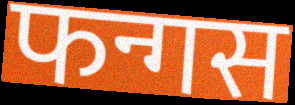
फन्गस